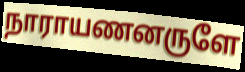
நாராயணனருளே